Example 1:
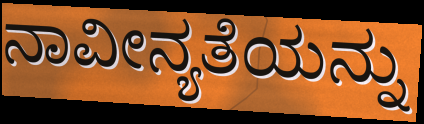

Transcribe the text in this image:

ನಾವೀನ್ಯತೆಯನ್ನು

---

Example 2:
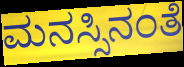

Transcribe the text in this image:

ಮನಸ್ಸಿನಂತೆ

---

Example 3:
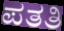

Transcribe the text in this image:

ಪತತಿ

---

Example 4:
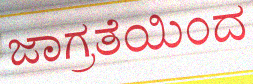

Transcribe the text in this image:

ಜಾಗ್ರತೆಯಿಂದ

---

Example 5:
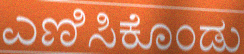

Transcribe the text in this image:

ಎಣಿಸಿಕೊಂಡು